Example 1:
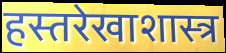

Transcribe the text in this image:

हस्तरेखाशास्त्र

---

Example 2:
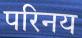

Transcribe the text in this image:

परिनय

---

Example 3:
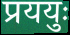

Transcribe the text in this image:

प्रययुः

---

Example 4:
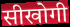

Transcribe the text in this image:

सीखोगी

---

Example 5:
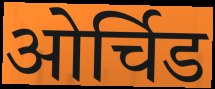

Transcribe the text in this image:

ओर्चिड